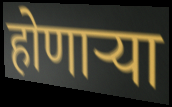
होणाऱ्या